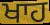
ਖਾਹ